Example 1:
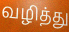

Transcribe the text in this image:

வழித்து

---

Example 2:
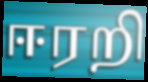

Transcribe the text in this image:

ஈரறி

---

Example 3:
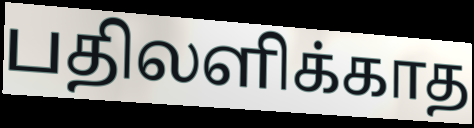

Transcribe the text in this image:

பதிலளிக்காத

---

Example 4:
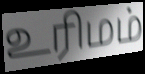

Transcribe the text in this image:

உரிமம்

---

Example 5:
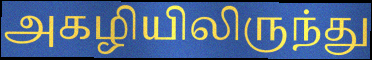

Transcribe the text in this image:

அகழியிலிருந்து